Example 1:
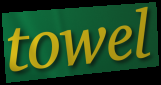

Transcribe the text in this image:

towel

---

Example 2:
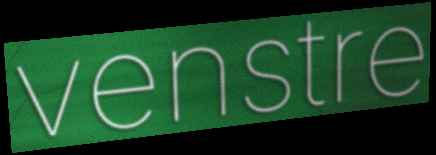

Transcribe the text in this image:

venstre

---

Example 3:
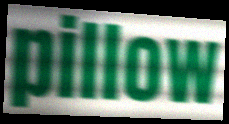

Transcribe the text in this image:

pillow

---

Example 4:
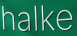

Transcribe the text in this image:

halke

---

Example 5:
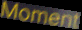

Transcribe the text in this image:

Moment